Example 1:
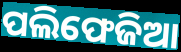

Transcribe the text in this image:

ପଲିଫେଜିଆ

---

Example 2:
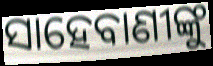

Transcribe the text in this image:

ସାହେବାଣୀଙ୍କୁ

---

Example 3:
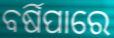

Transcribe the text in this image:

ବର୍ଷିପାରେ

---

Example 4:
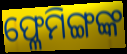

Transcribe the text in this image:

ଫ୍ଳେମିଙ୍ଗଙ୍କ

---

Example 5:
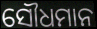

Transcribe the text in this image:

ସୌଧମାନ